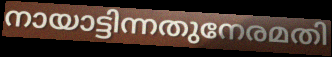
നായാട്ടിന്നതുനേരമതി